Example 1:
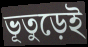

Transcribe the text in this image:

ভূতুড়েই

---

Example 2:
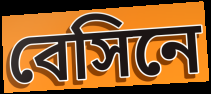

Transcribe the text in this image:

বেসিনে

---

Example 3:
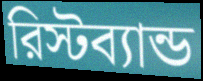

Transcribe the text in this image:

রিস্টব্যান্ড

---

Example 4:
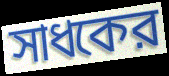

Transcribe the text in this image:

সাধকের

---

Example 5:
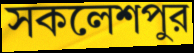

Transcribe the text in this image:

সকলেশপুর